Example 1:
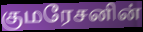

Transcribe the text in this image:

குமரேசனின்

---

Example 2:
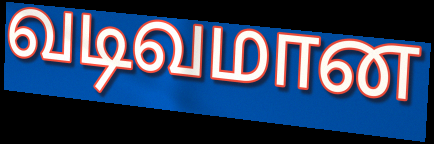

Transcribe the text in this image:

வடிவமான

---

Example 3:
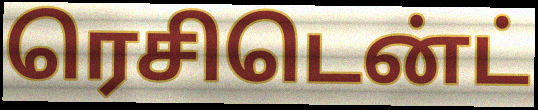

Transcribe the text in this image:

ரெசிடென்ட்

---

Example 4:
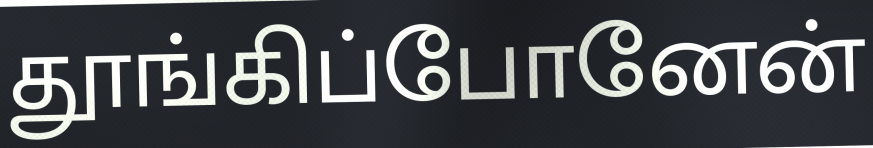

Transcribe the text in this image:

தூங்கிப்போனேன்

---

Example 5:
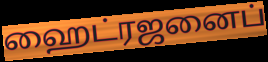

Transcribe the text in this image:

ஹைட்ரஜனைப்